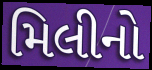
મિલીનો